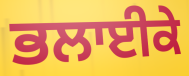
ਭਲਾਈਕੇ